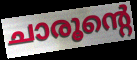
ചാരൂന്റെ